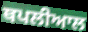
ਥਪਲੀਆਲ